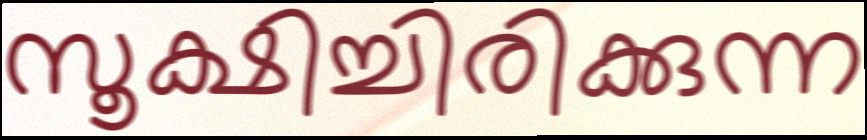
സൂക്ഷിച്ചിരിക്കുന്ന